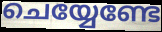
ചെയ്യേണ്ടേ